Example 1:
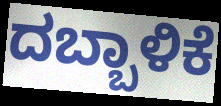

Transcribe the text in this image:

ದಬ್ಬಾಳಿಕೆ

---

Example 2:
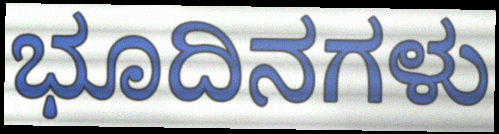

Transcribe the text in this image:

ಭೂದಿನಗಳು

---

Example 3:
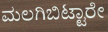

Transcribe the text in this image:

ಮಲಗಿಬಿಟ್ಟಾರೇ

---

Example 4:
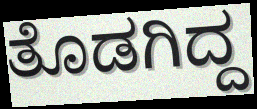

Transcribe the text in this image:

ತೊಡಗಿದ್ದ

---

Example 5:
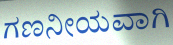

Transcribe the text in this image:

ಗಣನೀಯವಾಗಿ